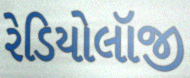
રેડિયોલૉજી